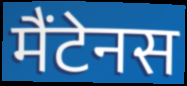
मैंटेनस